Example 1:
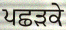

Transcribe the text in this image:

ਪਛੜਕੇ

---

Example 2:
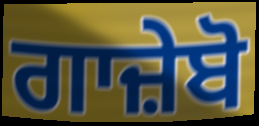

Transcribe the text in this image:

ਗਾਜ਼ੇਬੋ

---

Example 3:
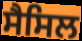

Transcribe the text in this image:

ਸੈਸਿਲ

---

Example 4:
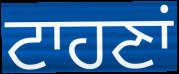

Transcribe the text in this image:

ਟਾਹਣਾਂ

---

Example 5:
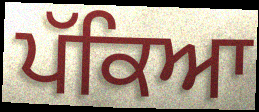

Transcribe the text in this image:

ਪੱਕਿਆ